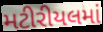
મટીરીયલમાં